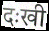
दःखी